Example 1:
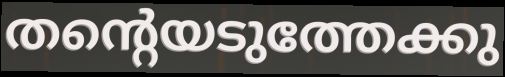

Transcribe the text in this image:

തന്റെയടുത്തേക്കു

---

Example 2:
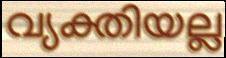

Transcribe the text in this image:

വ്യക്തിയല്ല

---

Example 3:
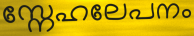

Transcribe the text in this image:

സ്നേഹലേപനം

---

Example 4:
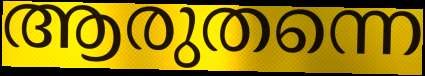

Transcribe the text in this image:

ആരുതന്നെ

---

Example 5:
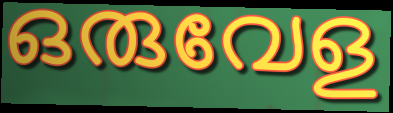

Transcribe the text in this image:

ഒരുവേള